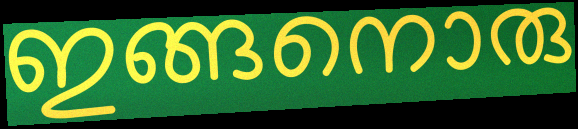
ഇങ്ങനൊരു